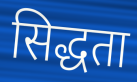
सिद्धता